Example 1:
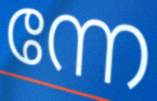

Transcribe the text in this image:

ന്നേ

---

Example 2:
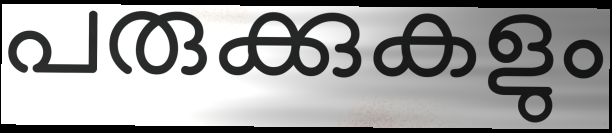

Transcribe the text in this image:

പരുക്കുകളും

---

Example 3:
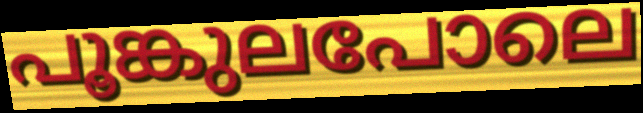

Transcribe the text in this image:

പൂങ്കുലപോലെ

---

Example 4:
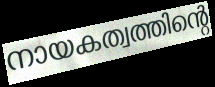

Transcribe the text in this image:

നായകത്വത്തിന്റെ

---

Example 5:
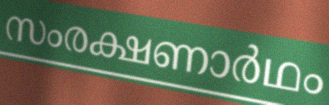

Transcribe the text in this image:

സംരക്ഷണാർഥം